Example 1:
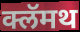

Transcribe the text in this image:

क्लॅमथ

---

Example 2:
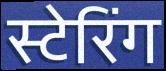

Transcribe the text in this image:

स्टेरिंग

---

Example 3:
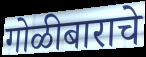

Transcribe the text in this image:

गोळीबाराचे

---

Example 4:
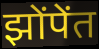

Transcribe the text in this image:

झोंपेंत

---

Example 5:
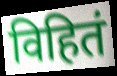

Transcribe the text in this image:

विहितं